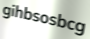
gihbsosbcg